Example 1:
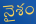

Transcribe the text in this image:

నైశం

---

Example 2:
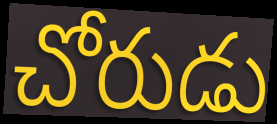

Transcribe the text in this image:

చోరుడు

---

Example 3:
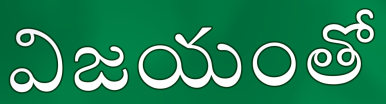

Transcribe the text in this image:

విజయంతో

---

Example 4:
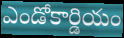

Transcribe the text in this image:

ఎండోకార్డియం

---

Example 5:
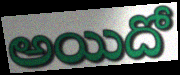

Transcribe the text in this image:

అయిదో